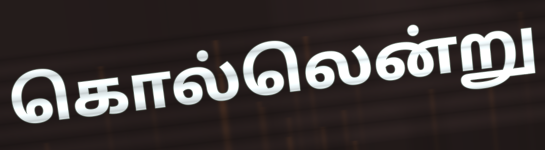
கொல்லென்று